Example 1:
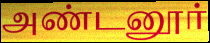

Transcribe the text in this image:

அண்டனூர்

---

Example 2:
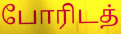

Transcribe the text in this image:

போரிடத்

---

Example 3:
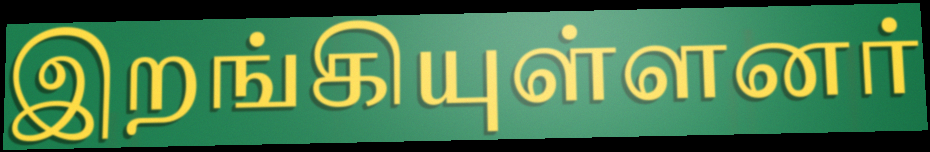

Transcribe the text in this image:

இறங்கியுள்ளனர்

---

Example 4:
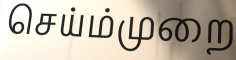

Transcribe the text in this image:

செய்ம்முறை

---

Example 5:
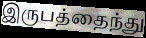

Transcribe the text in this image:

இருபத்தைந்து